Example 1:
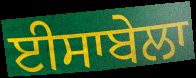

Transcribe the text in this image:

ਈਸਾਬੇਲਾ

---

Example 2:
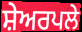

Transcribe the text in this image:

ਸ਼ੇਅਰਪਲੇ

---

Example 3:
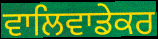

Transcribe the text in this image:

ਵਾਲਿਵਾਡੇਕਰ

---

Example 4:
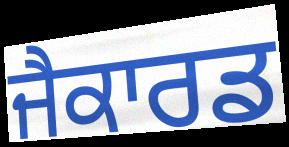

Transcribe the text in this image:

ਜੈਕਾਰਡ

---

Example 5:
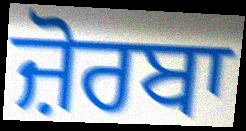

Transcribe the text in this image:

ਜ਼ੋਰਬਾ